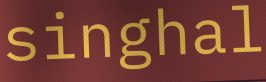
singhal